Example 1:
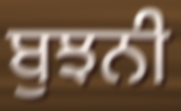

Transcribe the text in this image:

ਬੁਝਨੀ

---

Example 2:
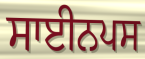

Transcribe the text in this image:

ਸਾਈਨਪਸ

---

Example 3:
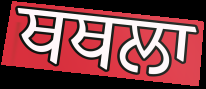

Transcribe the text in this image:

ਥਥਲਾ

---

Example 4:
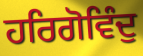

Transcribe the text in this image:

ਹਰਿਗੋਵਿੰਦੁ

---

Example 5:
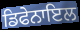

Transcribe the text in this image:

ਡਿਫੇਨਾਇਲ